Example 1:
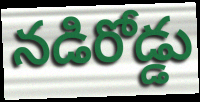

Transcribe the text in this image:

నడిరోడ్డు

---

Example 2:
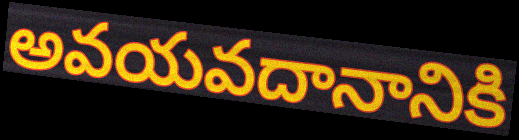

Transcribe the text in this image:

అవయవదానానికి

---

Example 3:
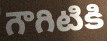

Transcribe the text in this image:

గౌగిటికి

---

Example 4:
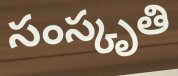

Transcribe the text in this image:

సంస్కృతి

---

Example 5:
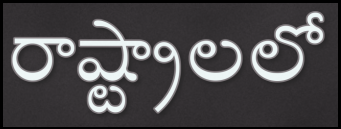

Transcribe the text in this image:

రాష్ట్రాలలో